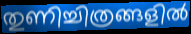
തുണിച്ചിത്രങ്ങളിൽ